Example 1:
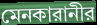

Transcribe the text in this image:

মেনকারানীর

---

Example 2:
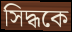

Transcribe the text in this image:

সিদ্ধকে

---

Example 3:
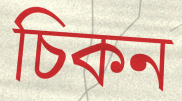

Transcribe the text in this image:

চিকন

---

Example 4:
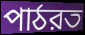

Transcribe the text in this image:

পাঠরত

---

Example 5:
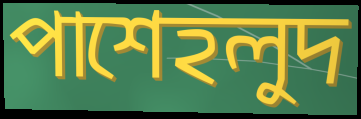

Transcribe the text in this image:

পাশেহলুদ